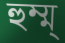
হুম্ম্